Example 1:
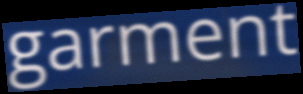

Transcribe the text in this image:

garment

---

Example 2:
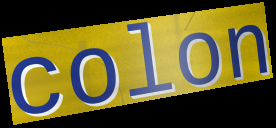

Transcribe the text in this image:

colon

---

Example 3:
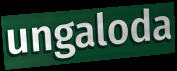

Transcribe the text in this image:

ungaloda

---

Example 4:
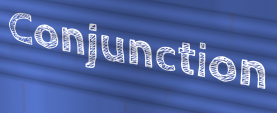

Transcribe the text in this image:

Conjunction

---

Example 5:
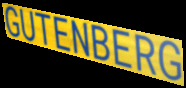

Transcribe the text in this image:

GUTENBERG